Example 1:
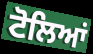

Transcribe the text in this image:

ਟੋਲਿਆਂ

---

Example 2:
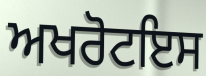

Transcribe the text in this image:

ਅਖਰੋਟਇਸ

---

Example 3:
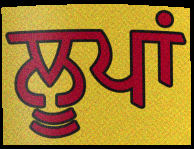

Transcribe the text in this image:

ਲੂਪਾਂ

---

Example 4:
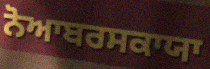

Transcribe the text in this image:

ਨੋਆਬਰਸਕਾਯਾ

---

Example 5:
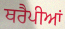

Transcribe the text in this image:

ਥਰੈਪੀਆਂ